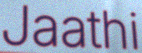
Jaathi